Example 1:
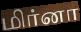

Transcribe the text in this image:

மிர்னா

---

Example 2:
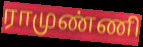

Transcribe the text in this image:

ராமுண்ணி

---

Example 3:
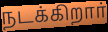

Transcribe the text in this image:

நடக்கிறார்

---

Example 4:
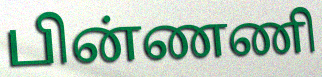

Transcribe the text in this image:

பின்ணணி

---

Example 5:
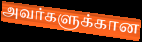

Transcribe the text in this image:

அவர்களுக்கான